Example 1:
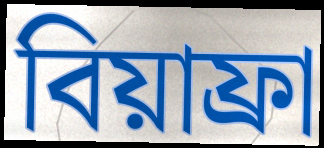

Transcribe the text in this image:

বিয়াফ্রা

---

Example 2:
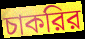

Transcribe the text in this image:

চাকরির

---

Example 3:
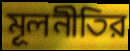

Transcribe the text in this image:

মূলনীতির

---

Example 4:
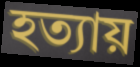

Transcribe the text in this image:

হত্যায়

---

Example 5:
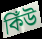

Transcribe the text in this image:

কিঁউ